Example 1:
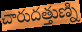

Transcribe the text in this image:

చారుదత్తుణ్ని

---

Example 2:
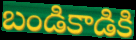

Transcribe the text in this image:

బండికాడికి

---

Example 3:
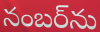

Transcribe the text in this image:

నంబర్‌ను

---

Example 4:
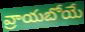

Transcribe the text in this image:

వ్రాయబోయే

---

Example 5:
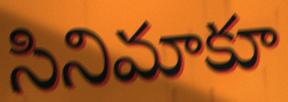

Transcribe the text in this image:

సినిమాకూ